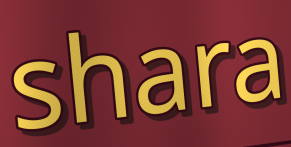
shara